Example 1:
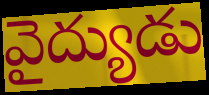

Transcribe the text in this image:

వైద్యుడు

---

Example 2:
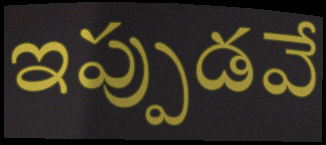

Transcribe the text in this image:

ఇప్పుడవే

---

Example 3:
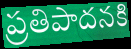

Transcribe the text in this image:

ప్రతిపాదనకి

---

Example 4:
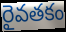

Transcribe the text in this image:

రైవతకం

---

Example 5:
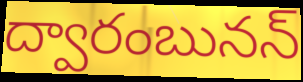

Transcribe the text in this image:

ద్వారంబునన్